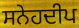
ਸਨੇਹਦੀਪ